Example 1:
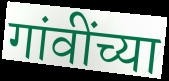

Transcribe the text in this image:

गांवींच्या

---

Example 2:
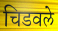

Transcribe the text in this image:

चिडवले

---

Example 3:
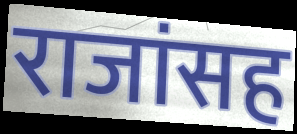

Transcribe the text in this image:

राजांसह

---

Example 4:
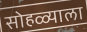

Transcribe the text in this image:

सोहळ्याला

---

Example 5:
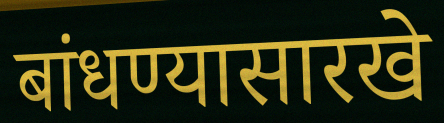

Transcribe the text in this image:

बांधण्यासारखे